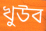
খুউব